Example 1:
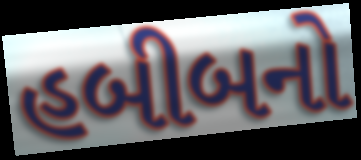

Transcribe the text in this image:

હબીબનો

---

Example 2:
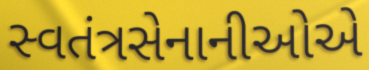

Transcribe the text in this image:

સ્વતંત્રસેનાનીઓએ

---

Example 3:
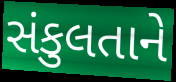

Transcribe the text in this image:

સંકુલતાને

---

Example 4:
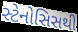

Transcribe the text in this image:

સ્ટેનોસિસથી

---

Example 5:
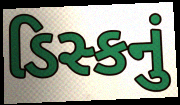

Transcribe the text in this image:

ડિસ્કનું